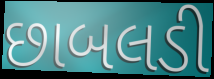
છાબલડી